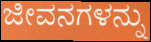
ಜೀವನಗಳನ್ನು